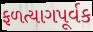
ફળત્યાગપૂર્વક